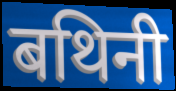
बथिनी